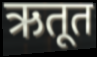
ऋतूत